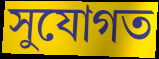
সুযোগত